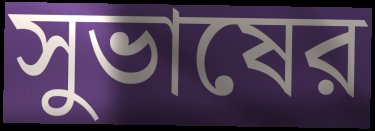
সুভাষের